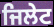
ਜਿਲੇਟ